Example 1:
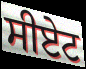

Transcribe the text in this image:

ਸੀਏਟ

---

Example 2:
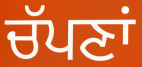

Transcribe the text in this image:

ਚੱਪਣਾਂ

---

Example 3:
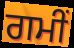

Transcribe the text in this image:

ਗਮੀਂ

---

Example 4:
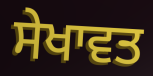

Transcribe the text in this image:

ਸੇਖਾਵਤ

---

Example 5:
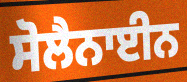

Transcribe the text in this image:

ਸੋਲੈਨਾਈਨ